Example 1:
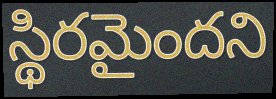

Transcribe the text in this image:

స్థిరమైందని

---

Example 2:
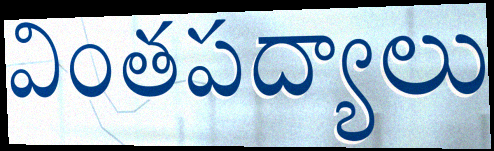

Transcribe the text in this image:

వింతపద్యాలు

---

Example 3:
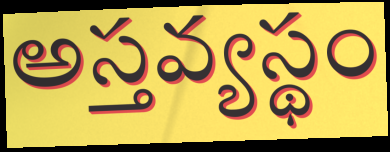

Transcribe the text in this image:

అస్తవ్యస్థం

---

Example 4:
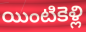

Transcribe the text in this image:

యింటికెళ్లి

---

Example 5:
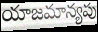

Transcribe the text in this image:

యాజమాన్యపు